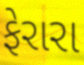
ફેરારા